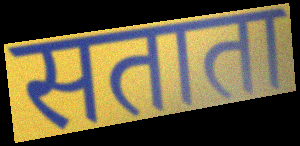
सताता